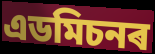
এডমিচনৰ